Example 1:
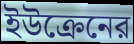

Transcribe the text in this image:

ইউক্রেনের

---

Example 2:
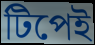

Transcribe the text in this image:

টিপেই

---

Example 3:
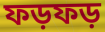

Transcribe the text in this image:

ফড়ফড়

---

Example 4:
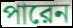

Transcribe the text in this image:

পারেন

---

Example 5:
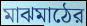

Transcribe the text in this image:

মাঝমাঠের